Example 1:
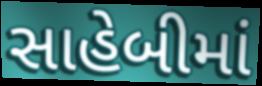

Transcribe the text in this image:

સાહેબીમાં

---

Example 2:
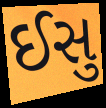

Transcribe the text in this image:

ઈસુ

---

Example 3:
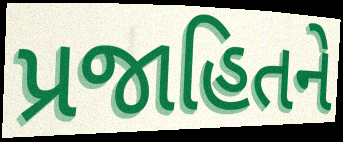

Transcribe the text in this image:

પ્રજાહિતને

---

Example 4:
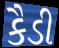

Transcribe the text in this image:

કૈડી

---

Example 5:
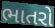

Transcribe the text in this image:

ભાતરો